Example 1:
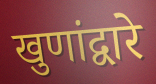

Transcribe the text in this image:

खुणांद्वारे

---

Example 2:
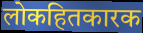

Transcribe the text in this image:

लोकहितकारक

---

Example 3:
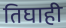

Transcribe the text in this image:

तिघाही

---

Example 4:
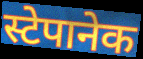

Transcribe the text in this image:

स्टेपानेक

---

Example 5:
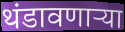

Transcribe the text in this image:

थंडावणाऱ्या